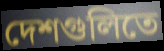
দেশগুলিতে